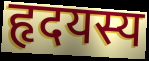
हृदयस्य